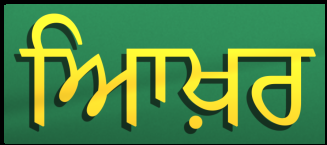
ਆਿਖ਼ਰ